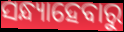
ସନ୍ଧ୍ୟାହେବାରୁ